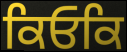
ਕਿਓਕਿ